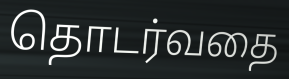
தொடர்வதை